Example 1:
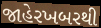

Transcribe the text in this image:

જાહેરખબરથી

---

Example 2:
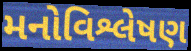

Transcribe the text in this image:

મનોવિશ્લેષણ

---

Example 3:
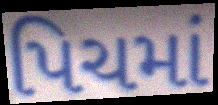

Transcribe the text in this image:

પિચમાં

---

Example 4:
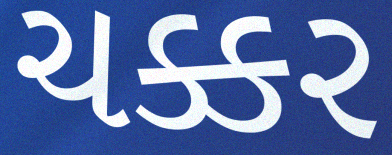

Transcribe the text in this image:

ચક્કર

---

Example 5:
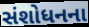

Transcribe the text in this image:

સંશોધનના